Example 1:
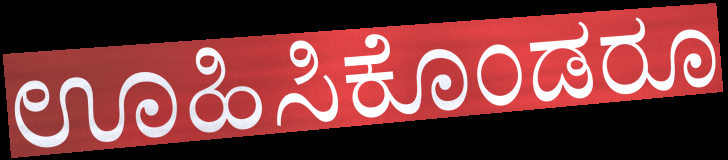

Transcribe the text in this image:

ಊಹಿಸಿಕೊಂಡರೂ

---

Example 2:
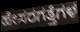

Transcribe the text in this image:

ಹೇಸರಗತ್ತೆಗಳ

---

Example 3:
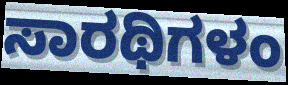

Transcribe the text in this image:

ಸಾರಥಿಗಳಂ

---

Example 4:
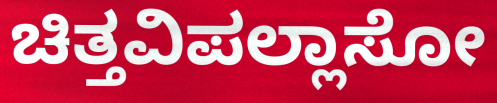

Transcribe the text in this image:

ಚಿತ್ತವಿಪಲ್ಲಾಸೋ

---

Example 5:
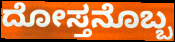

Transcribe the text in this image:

ದೋಸ್ತನೊಬ್ಬ